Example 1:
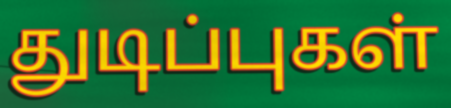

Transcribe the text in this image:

துடிப்புகள்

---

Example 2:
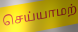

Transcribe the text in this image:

செய்யாமற்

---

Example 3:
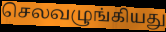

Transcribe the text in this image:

செலவழுங்கியது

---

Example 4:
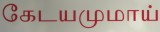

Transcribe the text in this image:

கேடயமுமாய்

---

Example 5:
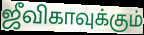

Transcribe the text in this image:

ஜீவிகாவுக்கும்